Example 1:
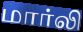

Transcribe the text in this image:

மார்லி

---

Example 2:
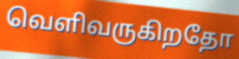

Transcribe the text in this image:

வெளிவருகிறதோ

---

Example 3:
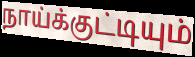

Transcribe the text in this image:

நாய்க்குட்டியும்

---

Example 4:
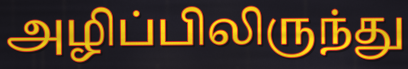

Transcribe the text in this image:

அழிப்பிலிருந்து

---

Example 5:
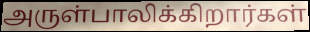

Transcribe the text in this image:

அருள்பாலிக்கிறார்கள்